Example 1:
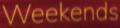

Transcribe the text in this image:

Weekends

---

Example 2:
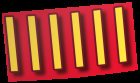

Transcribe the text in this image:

IIIIII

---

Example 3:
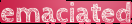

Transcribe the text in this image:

emaciated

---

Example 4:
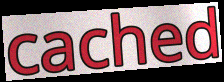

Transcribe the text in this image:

cached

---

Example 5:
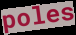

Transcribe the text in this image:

poles